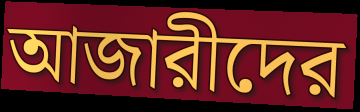
আজারীদের